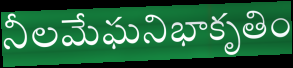
నీలమేఘనిభాకృతిం